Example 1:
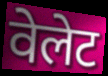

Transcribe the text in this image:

वेलेट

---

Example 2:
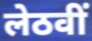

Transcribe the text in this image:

लेठवीं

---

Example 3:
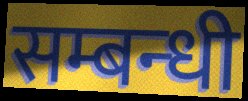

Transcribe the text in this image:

सम्‍बन्‍धी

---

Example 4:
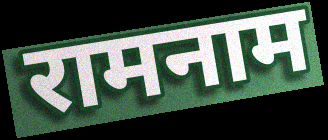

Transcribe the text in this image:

रामनाम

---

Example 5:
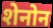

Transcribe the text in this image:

शेनोन